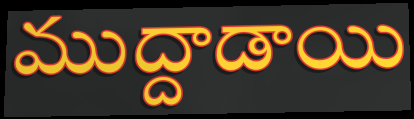
ముద్దాడాయి